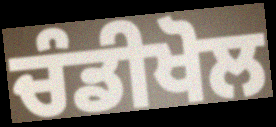
ਚੰਡੀਖੋਲ